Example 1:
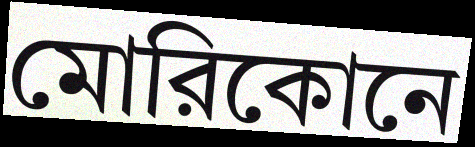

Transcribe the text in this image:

মোরিকোনে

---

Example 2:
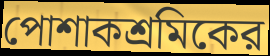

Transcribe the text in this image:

পোশাকশ্রমিকের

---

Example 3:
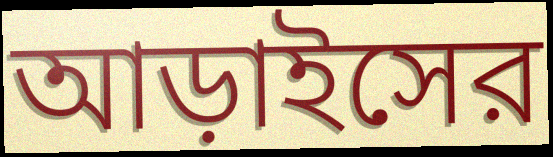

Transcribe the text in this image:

আড়াইসের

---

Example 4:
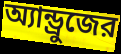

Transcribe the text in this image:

অ্যান্ড্রুজের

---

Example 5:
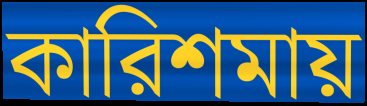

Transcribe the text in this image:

কারিশমায়